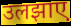
उलझाए